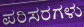
ಪರಿಸರಗಳು